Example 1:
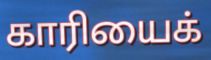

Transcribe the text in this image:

காரியைக்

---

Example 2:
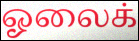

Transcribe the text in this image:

ஓலைக்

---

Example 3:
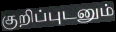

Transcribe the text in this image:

குறிப்புடனும்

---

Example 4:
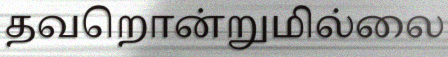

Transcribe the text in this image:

தவறொன்றுமில்லை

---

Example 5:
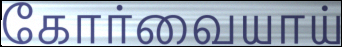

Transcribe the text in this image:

கோர்வையாய்